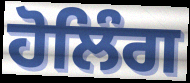
ਹੋਲਿੰਗ